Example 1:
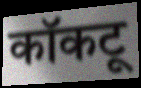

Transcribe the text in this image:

कॉकटू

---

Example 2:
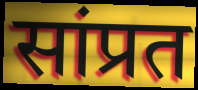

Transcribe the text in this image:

सांप्रत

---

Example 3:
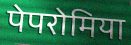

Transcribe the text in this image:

पेपरोमिया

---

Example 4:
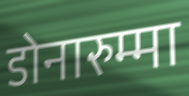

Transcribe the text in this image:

डोनारुम्मा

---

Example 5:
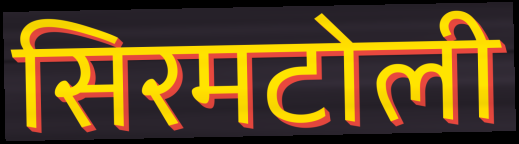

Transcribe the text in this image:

सिरमटोली